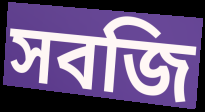
সবজি